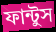
ফান্টুস